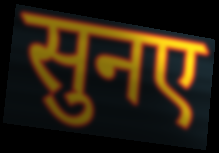
सुनए